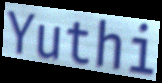
Yuthi